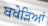
ਬਖੇੜਿਆਂ